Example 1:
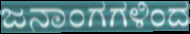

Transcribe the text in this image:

ಜನಾಂಗಗಳಿಂದ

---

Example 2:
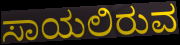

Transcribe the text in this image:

ಸಾಯಲಿರುವ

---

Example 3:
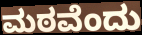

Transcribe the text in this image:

ಮಠವೆಂದು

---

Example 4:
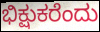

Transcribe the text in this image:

ಭಿಕ್ಷುಕರೆಂದು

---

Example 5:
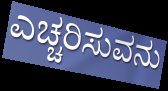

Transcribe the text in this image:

ಎಚ್ಚರಿಸುವನು